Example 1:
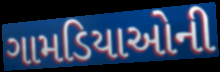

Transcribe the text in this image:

ગામડિયાઓની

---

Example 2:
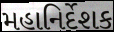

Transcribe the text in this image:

મહાનિર્દેશક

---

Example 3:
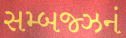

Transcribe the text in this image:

સમ્બજ્ઝનં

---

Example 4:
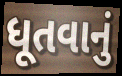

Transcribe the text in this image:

ધૂતવાનું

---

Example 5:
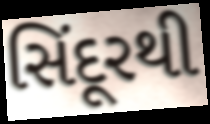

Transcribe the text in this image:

સિંદૂરથી